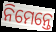
ନିମେନ୍ତେ